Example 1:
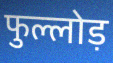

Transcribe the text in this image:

फुल्लोड़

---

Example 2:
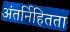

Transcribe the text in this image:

अंतर्निहितता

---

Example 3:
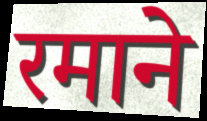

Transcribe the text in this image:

रमाने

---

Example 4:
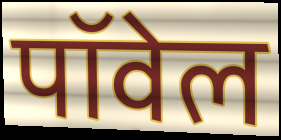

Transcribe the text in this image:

पॉवेल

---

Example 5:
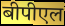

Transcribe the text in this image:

बीपीएल